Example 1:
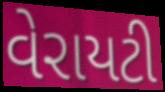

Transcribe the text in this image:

વેરાયટી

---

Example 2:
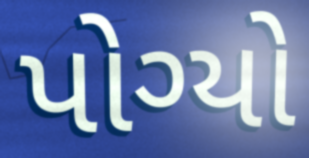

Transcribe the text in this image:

પોગ્યો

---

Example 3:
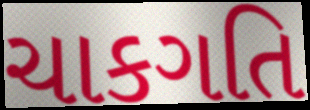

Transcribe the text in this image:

ચાકગતિ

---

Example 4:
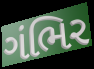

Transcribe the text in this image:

ગંભિર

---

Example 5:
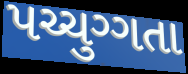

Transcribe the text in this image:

પચ્ચુગ્ગતા